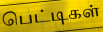
பெட்டிகள்